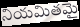
నియమితమై